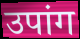
उपांग